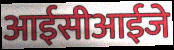
आईसीआईजे